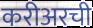
करीअरची